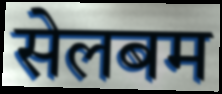
सेलबम